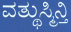
ವತ್ಥುಸ್ಮಿನ್ತಿ